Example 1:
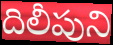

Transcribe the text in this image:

దిలీపుని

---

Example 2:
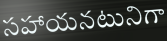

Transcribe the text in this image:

సహాయనటునిగా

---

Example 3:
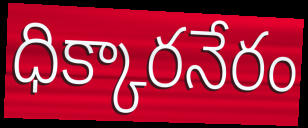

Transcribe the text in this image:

ధిక్కారనేరం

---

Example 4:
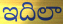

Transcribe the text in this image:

ఇదిలా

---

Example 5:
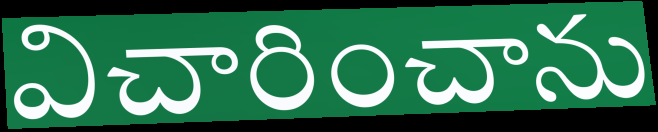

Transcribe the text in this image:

విచారించాను